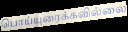
பொய்யுரைக்கவில்லை